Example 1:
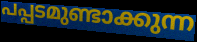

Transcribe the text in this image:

പപ്പടമുണ്ടാക്കുന്ന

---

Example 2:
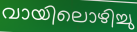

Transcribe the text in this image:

വായിലൊഴിച്ചു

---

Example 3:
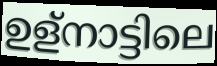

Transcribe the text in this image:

ഉള്നാട്ടിലെ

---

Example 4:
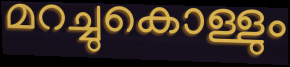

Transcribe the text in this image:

മറച്ചുകൊള്ളും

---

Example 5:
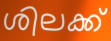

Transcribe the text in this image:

ശിലക്ക്